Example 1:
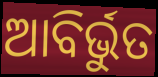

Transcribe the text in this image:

ଆବିର୍ଭୁତ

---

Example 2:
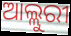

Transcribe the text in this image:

ଆଲ୍ଲୁରୀ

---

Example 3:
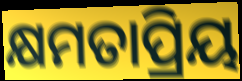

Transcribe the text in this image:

କ୍ଷମତାପ୍ରିୟ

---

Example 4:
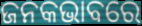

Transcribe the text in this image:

ଜନକଭାବରେ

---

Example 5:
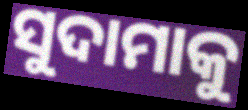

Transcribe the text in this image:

ସୁଦାମାକୁ